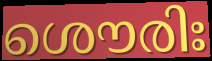
ശൌരിഃ